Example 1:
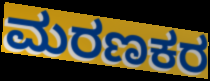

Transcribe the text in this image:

ಮರಣಕರ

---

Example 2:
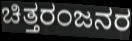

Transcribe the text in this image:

ಚಿತ್ತರಂಜನರ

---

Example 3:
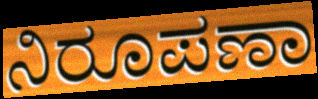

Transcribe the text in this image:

ನಿರೂಪಣಾ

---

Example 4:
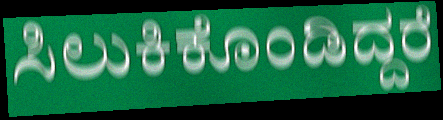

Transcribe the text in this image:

ಸಿಲುಕಿಕೊಂಡಿದ್ದರೆ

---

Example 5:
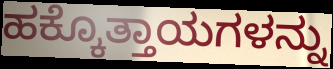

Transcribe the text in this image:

ಹಕ್ಕೊತ್ತಾಯಗಳನ್ನು